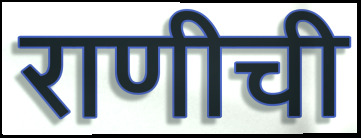
राणीची